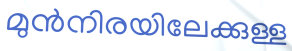
മുൻനിരയിലേക്കുള്ള